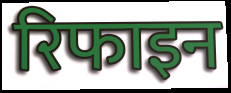
रिफाइन